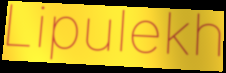
Lipulekh